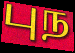
புந